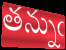
తన్నుఁ